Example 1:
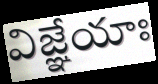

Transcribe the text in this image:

విజ్ఞేయాః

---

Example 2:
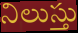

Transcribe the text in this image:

నిలుస్తు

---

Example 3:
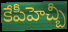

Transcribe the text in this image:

కేపీహెచ్బీ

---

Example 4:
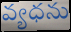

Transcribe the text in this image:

వ్యధను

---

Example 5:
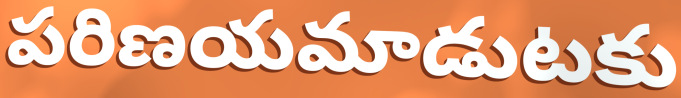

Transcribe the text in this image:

పరిణయమాడుటకు